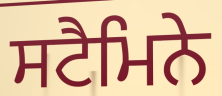
ਸਟੈਮਿਨੇ